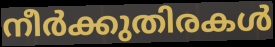
നീർക്കുതിരകൾ